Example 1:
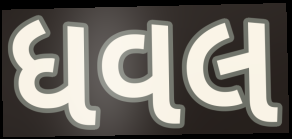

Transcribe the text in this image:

ધવલ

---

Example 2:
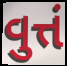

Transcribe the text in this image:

વુત્તં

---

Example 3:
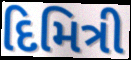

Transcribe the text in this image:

દિમિત્રી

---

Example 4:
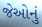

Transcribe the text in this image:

જેઓનું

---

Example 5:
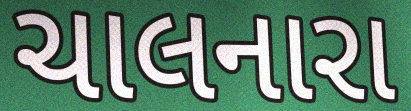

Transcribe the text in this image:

ચાલનારા